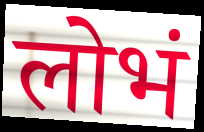
लोभं